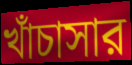
খাঁচাসার